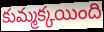
కుమ్మక్కయింది